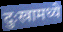
दुःखामध्ये